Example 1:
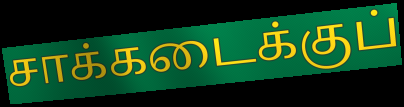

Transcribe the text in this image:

சாக்கடைக்குப்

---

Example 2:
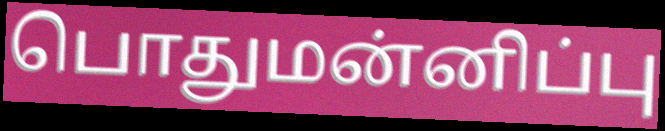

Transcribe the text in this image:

பொதுமன்னிப்பு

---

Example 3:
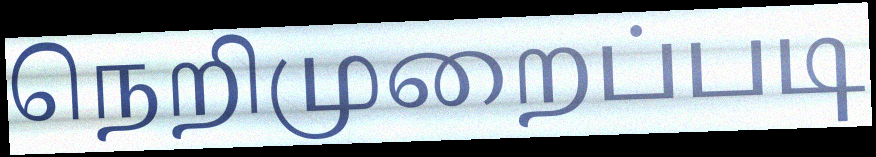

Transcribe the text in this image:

நெறிமுறைப்படி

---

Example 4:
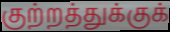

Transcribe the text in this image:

குற்றத்துக்குக்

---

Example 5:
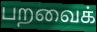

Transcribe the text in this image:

பறவைக்